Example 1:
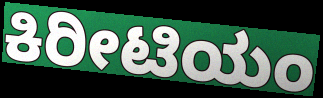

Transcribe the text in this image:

ಕಿರೀಟಿಯಂ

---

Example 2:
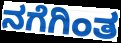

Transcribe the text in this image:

ನಗೆಗಿಂತ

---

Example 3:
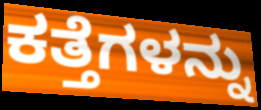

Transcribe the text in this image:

ಕತ್ತೆಗಳನ್ನು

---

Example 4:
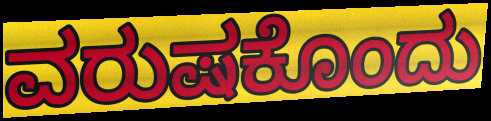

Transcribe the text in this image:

ವರುಷಕೊಂದು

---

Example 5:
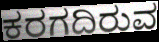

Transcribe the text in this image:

ಕರಗದಿರುವ